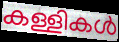
കള്ളികൾ